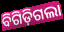
ବିଗିଡ଼ିଗଲା